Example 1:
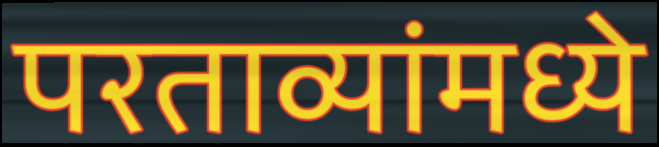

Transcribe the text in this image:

परताव्यांमध्ये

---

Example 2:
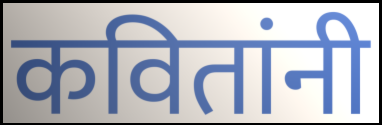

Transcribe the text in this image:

कवितांनी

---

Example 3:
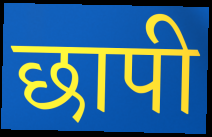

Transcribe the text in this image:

छापी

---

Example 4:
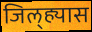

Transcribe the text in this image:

जिल्ह्यास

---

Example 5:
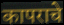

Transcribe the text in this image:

कापराचे